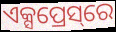
ଏକ୍ସପ୍ରେସ୍‌ରେ